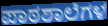
ಪಾಠಶಾಲೆಗಳ